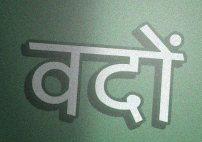
वदों